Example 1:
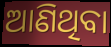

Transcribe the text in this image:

ଆଣିଥିବା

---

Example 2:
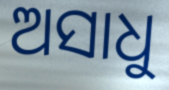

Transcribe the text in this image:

ଅସାଧୁ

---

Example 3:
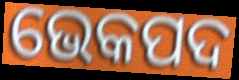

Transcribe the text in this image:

ଭେକପଦ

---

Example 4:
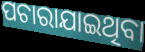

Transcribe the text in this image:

ପଚାରାଯାଇଥିବା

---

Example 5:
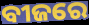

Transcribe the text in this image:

ବୀଜରେ